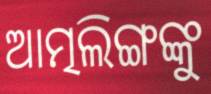
ଆତ୍ମଲିଙ୍ଗଙ୍କୁ